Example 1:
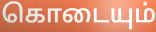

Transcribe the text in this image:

கொடையும்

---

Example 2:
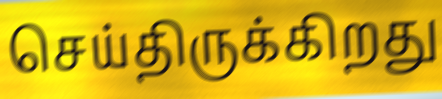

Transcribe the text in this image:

செய்திருக்கிறது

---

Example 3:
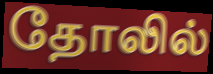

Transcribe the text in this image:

தோலில்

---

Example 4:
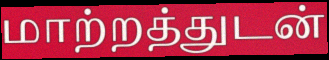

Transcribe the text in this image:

மாற்றத்துடன்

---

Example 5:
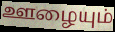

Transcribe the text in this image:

ஊழையும்